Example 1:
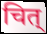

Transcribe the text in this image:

चित्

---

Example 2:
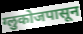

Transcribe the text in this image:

ग्लुकोजपासून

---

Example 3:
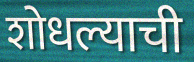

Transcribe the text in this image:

शोधल्याची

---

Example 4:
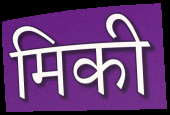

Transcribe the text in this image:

मिकी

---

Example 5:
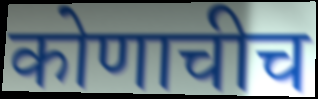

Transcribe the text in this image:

कोणाचीच